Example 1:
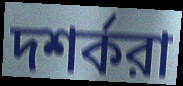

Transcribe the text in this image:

দশর্করা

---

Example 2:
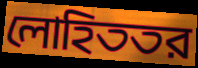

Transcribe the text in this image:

লোহিততর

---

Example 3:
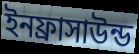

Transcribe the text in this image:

ইনফ্রাসাউন্ড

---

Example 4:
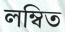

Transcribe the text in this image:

লম্বিত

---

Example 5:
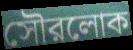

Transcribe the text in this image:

সৌরলোক